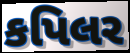
કપિલર